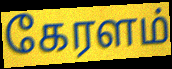
கேரளம்